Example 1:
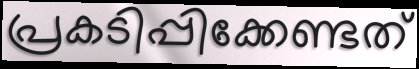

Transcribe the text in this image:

പ്രകടിപ്പിക്കേണ്ടത്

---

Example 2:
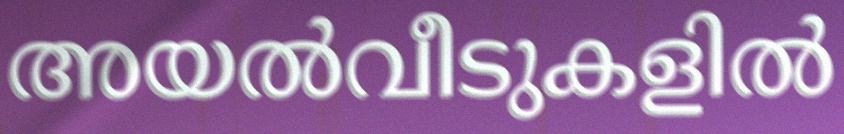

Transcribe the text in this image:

അയൽവീടുകളിൽ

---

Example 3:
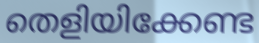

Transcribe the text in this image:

തെളിയിക്കേണ്ട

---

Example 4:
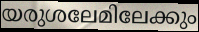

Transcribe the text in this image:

യരുശലേമിലേക്കും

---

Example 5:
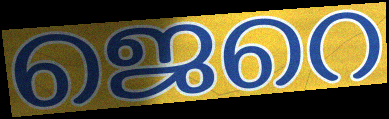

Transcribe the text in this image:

ജെറെ